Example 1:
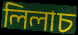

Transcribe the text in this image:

লিলাচ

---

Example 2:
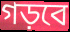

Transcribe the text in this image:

গড়বে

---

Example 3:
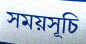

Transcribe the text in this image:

সময়সূচি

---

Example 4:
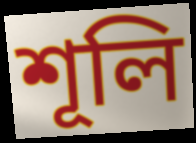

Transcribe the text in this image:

শূলি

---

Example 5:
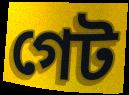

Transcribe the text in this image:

গেট